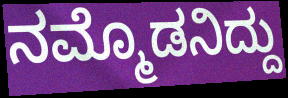
ನಮ್ಮೊಡನಿದ್ದು